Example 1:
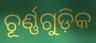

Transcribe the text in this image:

ଚୂର୍ଣ୍ଣଗୁଡ଼ିକ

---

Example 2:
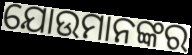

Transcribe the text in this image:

ଯୋଉମାନଙ୍କର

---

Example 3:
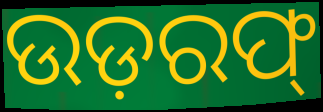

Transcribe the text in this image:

ଉଡ଼ରଫ୍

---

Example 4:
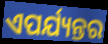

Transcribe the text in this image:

ଏପର୍ଯ୍ୟନ୍ତର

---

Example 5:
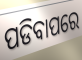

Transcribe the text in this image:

ପଡିବାପରେ